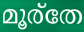
മൂര്തേ